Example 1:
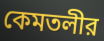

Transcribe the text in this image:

কেমতলীর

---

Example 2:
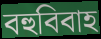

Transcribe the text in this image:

বহুবিবাহ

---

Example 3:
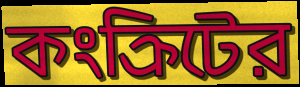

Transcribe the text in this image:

কংক্রিটের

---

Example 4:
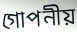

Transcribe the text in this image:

গোপনীয়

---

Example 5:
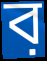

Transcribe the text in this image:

ব়